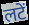
लटें